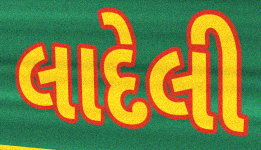
લાદેલી